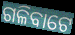
ଗଳିବାଟେ